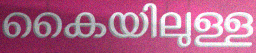
കൈയിലുള്ള